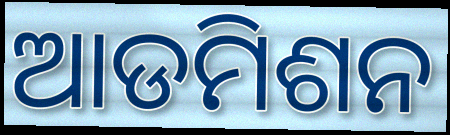
ଆଡମିଶନ